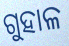
ଗୁହାଳ